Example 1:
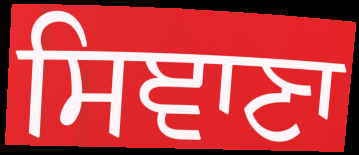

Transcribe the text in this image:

ਸਿਞਾਣਾ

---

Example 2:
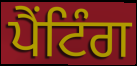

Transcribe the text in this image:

ਪੈਂਟਿੰਗ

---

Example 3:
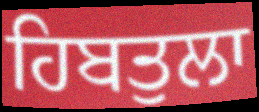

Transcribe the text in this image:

ਹਿਬਤੁਲਾ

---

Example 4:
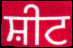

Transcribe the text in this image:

ਸ਼ੀਟ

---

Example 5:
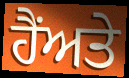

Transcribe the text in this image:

ਹੈਂਅਤੇ